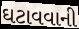
ઘટાવવાની